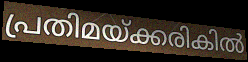
പ്രതിമയ്ക്കരികിൽ